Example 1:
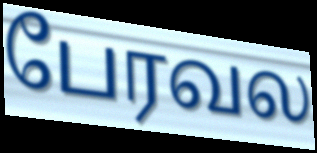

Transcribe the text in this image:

பேரவல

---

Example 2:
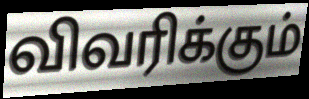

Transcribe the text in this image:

விவரிக்கும்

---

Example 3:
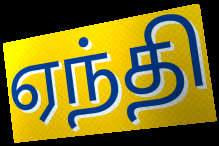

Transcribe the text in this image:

ஏந்தி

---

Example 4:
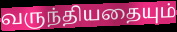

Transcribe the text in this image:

வருந்தியதையும்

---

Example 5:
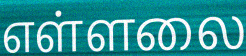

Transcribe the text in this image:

எள்ளலை